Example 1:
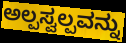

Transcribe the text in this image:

ಅಲ್ಪಸ್ವಲ್ಪವನ್ನು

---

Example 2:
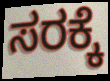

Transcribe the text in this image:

ಸರಕ್ಕೆ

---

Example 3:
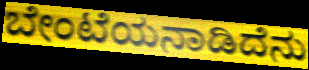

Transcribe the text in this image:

ಬೇಂಟೆಯನಾಡಿದೆನು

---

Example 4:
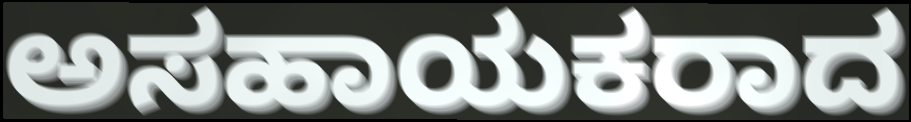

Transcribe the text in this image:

ಅಸಹಾಯಕರಾದ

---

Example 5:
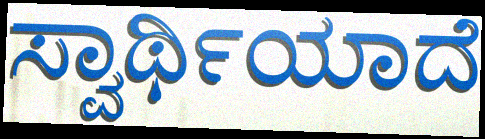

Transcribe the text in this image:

ಸ್ವಾರ್ಥಿಯಾದೆ